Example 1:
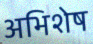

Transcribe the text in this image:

अभिशेष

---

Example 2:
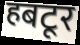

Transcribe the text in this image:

हबटूर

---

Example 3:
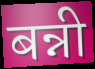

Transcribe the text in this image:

बन्नी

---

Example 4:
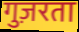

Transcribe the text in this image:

गुज़रता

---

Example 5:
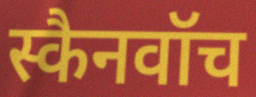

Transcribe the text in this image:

स्कैनवॉच